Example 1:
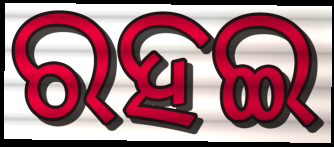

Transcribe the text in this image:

ରହଇ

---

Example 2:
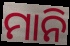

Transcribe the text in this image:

ମାନି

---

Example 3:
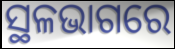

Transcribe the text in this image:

ସ୍ଥଳଭାଗରେ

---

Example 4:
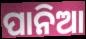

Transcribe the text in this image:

ପାନିଆ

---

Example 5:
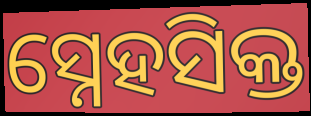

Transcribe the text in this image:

ସ୍ନେହସିକ୍ତ